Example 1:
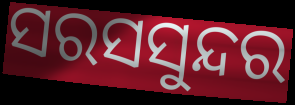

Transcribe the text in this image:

ସରସସୁନ୍ଦର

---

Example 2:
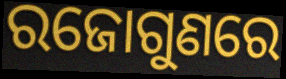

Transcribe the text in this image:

ରଜୋଗୁଣରେ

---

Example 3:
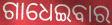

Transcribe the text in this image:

ଗାଧେଇବାର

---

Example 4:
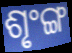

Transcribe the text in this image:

ଶୃଂଙ୍ଗ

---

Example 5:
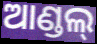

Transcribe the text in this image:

ଆଣ୍ଡଲ୍